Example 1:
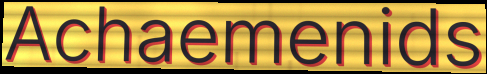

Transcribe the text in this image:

Achaemenids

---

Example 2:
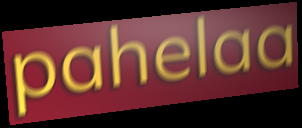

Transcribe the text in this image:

pahelaa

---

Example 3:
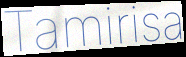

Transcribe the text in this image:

Tamirisa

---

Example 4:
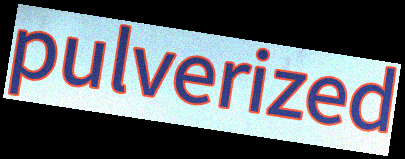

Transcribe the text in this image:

pulverized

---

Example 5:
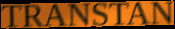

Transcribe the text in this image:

TRANSTAN